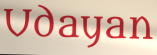
Udayan